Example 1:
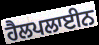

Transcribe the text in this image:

ਹੈਲਪਲਾਈਨ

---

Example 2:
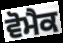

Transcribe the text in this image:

ਵੋਮੈਕ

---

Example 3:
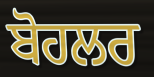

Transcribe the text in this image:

ਬੋਹਲਰ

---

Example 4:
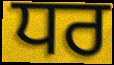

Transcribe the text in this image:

ਧਰ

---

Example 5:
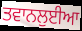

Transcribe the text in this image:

ਤਵਾਨਲੁਈਆ